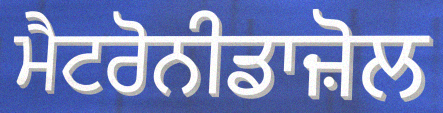
ਮੈਟਰੋਨੀਡਾਜ਼ੋਲ